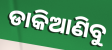
ଡାକିଆଣିବୁ